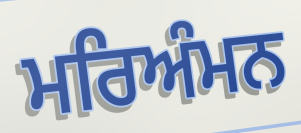
ਮਰਿਅੰਮਨ